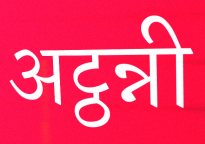
अट्ठन्नी